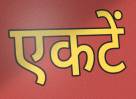
एकटें